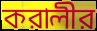
করালীর